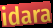
idara